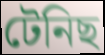
টেনিছ